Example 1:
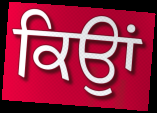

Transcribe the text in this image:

ਕਿਉਾਂ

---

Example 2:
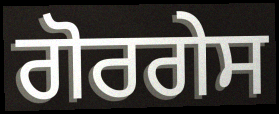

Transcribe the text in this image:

ਗੋਰਗੇਸ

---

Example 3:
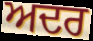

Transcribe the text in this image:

ਅਦਰ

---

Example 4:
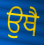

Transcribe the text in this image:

ਉਥੈ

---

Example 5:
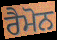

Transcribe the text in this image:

ਰੈਮੋਨ